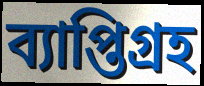
ব্যাপ্তিগ্রহ